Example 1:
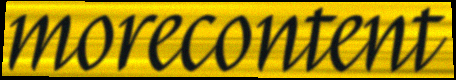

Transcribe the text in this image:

morecontent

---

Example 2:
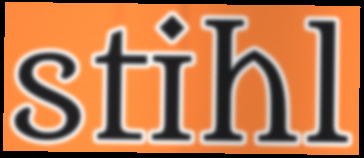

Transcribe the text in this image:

stihl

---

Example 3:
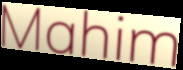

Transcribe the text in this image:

Mahim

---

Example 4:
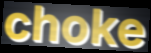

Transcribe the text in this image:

choke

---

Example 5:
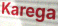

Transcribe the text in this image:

Karega